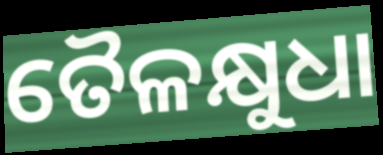
ତୈଳକ୍ଷୁଧା